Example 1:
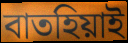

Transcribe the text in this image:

বাতহিয়াই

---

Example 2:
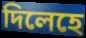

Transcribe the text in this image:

দিলেহে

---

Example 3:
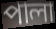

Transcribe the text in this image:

পালা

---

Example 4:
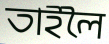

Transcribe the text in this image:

তাইলৈ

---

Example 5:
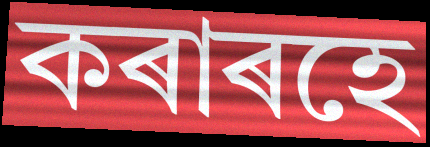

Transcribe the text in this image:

কৰাৰহে